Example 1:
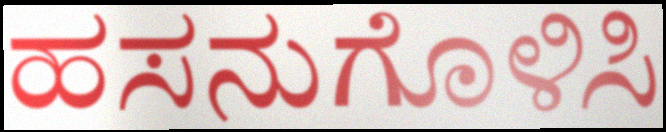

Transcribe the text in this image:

ಹಸನುಗೊಳಿಸಿ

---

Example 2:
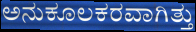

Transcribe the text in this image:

ಅನುಕೂಲಕರವಾಗಿತ್ತು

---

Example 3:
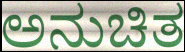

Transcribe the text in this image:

ಅನುಚಿತ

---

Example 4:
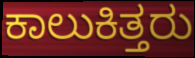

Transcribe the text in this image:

ಕಾಲುಕಿತ್ತರು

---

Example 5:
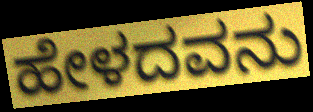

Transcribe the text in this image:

ಹೇಳದವನು